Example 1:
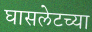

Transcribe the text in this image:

घासलेटच्या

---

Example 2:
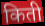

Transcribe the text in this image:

किती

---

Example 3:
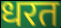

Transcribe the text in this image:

धरत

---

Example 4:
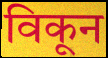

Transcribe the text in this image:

विकून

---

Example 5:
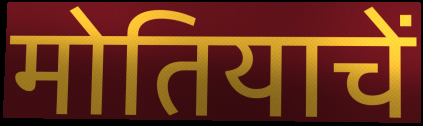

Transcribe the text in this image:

मोतियाचें